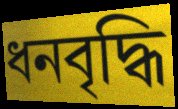
ধনবৃদ্ধি